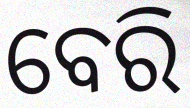
ବେରି